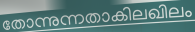
തോന്നുന്നതാകിലഖിലം